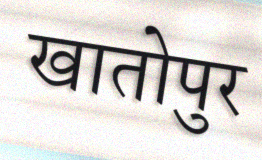
खातोपुर